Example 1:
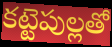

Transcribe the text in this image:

కట్టెపుల్లతో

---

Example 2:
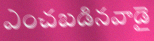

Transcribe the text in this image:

ఎంచబడినవాడై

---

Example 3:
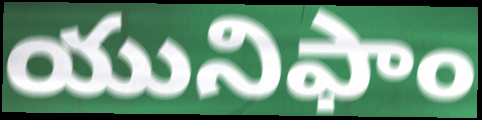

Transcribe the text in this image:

యునిఫాం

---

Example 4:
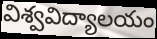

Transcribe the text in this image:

విశ్వవిద్యాలయం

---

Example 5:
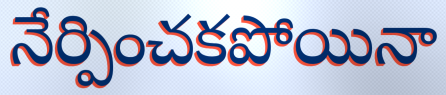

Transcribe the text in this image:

నేర్పించకపోయినా